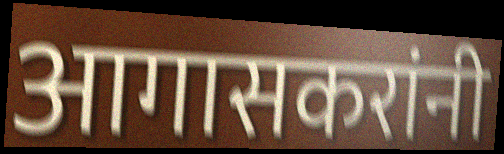
आगासकरांनी